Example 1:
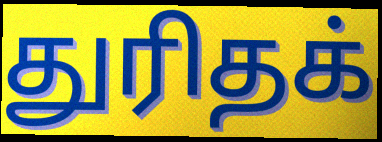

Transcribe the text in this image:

துரிதக்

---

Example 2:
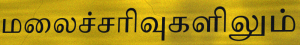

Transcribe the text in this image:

மலைச்சரிவுகளிலும்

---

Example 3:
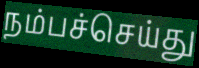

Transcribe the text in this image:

நம்பச்செய்து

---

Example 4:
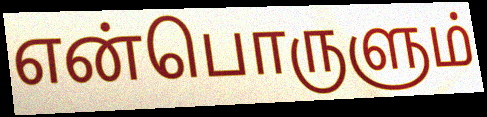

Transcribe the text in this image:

என்பொருளும்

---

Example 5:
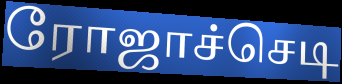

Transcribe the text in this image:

ரோஜாச்செடி